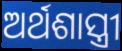
ଅର୍ଥଶାସ୍ତ୍ରୀ